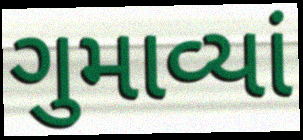
ગુમાવ્યાં